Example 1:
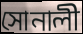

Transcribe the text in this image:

সোনালী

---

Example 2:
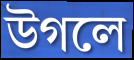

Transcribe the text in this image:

উগলে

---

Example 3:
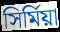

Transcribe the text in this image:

সির্মিয়া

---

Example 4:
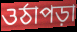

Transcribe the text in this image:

ওঠাপড়া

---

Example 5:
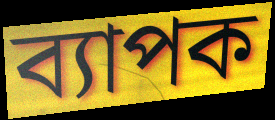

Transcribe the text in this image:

ব্যাপক